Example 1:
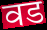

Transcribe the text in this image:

वड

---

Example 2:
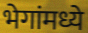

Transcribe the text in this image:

भेगांमध्ये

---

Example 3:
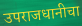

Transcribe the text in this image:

उपराजधानीचा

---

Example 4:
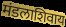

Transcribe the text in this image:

मंडलाशिवाय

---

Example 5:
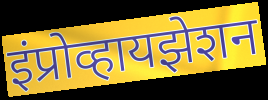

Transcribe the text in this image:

इंप्रोव्हायझेशन